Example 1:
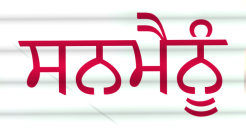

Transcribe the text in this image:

ਸਨਮੈਨੂੰ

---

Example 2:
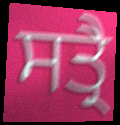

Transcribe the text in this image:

ਸਤ੍ਰੈ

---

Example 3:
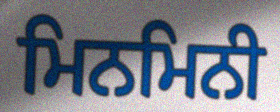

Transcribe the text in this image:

ਮਿਨਮਿਨੀ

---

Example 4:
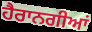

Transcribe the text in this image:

ਹੈਰਾਨਗੀਆਂ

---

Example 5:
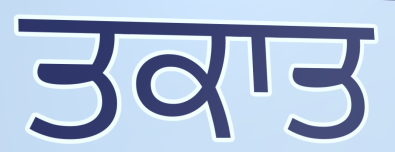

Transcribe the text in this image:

ਤਕਾਤ